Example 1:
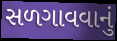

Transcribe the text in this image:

સળગાવવાનું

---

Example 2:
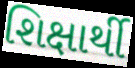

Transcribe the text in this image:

શિક્ષાર્થી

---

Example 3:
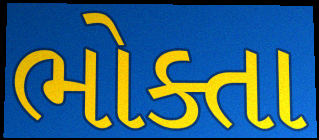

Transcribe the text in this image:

ભોક્તા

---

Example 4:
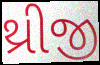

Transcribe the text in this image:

થ્રીજી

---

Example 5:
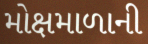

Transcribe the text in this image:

મોક્ષમાળાની